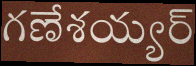
గణేశయ్యర్